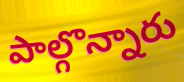
పాల్గొన్నారు